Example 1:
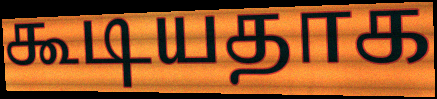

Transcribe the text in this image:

கூடியதாக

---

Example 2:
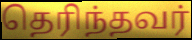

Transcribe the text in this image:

தெரிந்தவர்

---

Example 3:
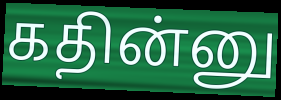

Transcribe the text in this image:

கதின்னு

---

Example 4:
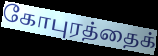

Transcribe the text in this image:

கோபுரத்தைக்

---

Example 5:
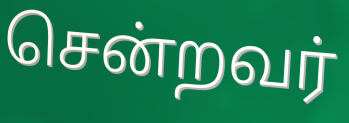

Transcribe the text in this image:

சென்றவர்